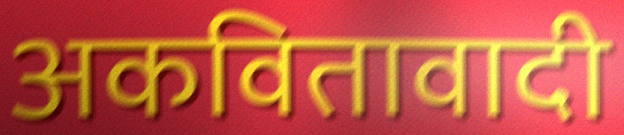
अकवितावादी